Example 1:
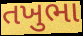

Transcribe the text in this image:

તખુભા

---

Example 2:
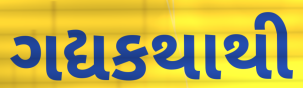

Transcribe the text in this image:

ગદ્યકથાથી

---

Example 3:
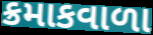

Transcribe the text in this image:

ક્રમાકવાળા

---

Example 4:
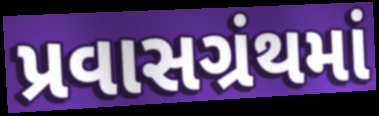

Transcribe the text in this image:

પ્રવાસગ્રંથમાં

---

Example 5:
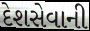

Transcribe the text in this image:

દેશસેવાની